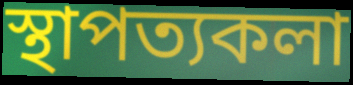
স্থাপত্যকলা